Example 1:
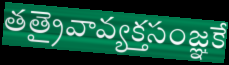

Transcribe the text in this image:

తత్రైవావ్యక్తసంజ్ఞకే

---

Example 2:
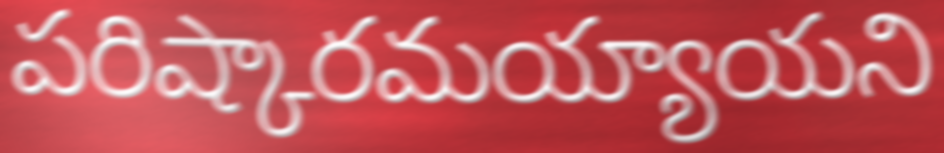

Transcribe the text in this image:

పరిష్కారమయ్యాయని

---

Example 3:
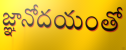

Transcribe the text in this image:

జ్ఞానోదయంతో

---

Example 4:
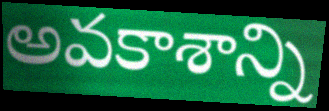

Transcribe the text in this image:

అవకాశాన్ని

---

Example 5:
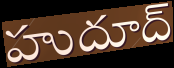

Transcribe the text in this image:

హుదూద్